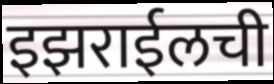
इझराईलची